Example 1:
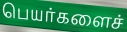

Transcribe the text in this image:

பெயர்களைச்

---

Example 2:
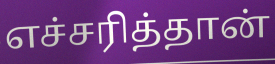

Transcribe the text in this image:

எச்சரித்தான்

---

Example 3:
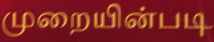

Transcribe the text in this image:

முறையின்படி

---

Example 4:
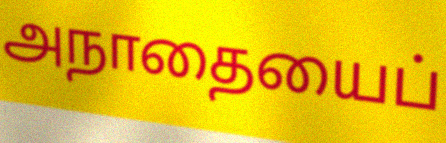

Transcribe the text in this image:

அநாதையைப்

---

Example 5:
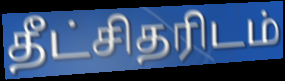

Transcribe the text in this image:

தீட்சிதரிடம்